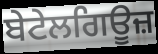
ਬੇਟੇਲਗਿਊਜ਼